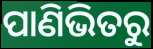
ପାଣିଭିତରୁ